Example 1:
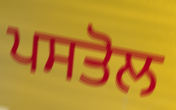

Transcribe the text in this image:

ਪਸਤੋਲ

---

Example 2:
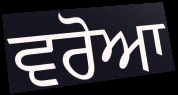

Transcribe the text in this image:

ਵਰੋਆ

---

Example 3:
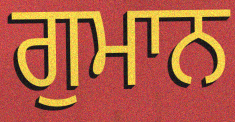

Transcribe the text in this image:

ਗੁਮਾਨ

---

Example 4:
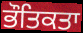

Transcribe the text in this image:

ਭੌਤਿਕਤਾ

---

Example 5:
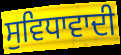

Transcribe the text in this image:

ਸੁਵਿਧਾਵਾਦੀ